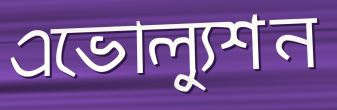
এভোল্যুশন